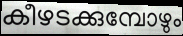
കീഴടക്കുമ്പോഴും